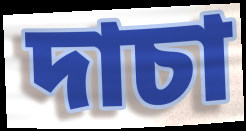
দাচা